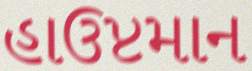
હાઉપ્ટમાન